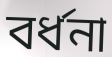
বর্ধনা